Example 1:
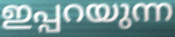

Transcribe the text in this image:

ഇപ്പറയുന്ന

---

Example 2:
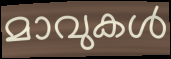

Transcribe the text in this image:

മാവുകൾ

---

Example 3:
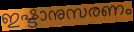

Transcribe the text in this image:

ഇഷ്ടാനുസരണം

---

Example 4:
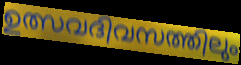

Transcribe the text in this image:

ഉത്സവദിവസത്തിലും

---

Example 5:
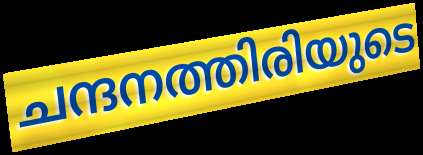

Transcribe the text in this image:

ചന്ദനത്തിരിയുടെ